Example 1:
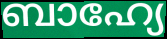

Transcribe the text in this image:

ബാഹ്യേ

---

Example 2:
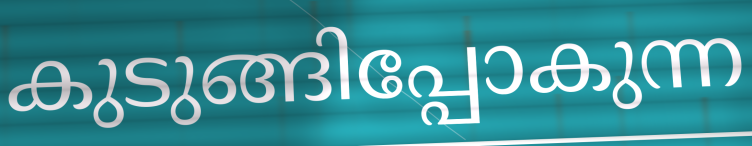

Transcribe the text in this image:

കുടുങ്ങിപ്പോകുന്ന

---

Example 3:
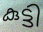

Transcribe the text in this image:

കുട്ടി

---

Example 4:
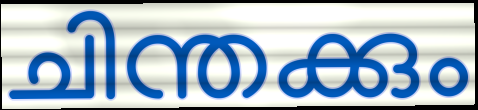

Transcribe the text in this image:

ചിന്തക്കും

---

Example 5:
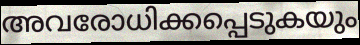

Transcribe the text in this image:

അവരോധിക്കപ്പെടുകയും